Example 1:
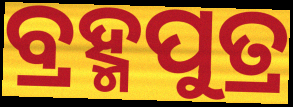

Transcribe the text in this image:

ବ୍ରହ୍ମପୁତ୍ର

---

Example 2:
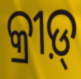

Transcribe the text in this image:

କ୍ରୀଡ଼୍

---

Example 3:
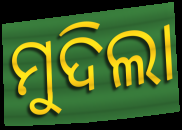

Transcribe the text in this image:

ମୁଦିଲା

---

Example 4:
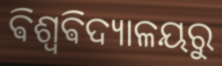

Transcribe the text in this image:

ଵିଶ୍ୱଵିଦ୍ୟାଳୟରୁ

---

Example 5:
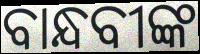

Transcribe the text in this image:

ବାନ୍ଧବୀଙ୍କ